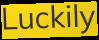
Luckily